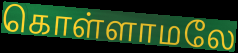
கொள்ளாமலே